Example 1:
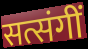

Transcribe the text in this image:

सत्संगीं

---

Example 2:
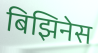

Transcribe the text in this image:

बिझिनेस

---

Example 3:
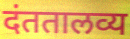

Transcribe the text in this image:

दंततालव्य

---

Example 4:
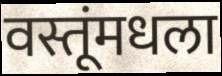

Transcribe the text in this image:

वस्तूंमधला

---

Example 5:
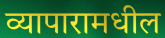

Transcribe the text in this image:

व्यापारामधील